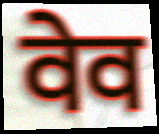
वेव